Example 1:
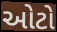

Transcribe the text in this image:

ઓટો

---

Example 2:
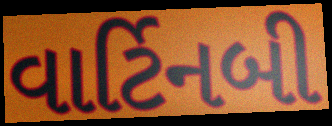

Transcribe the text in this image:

વાર્ટિનબી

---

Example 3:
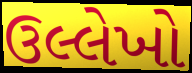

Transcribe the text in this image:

ઉલ્લેખો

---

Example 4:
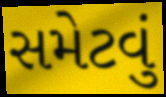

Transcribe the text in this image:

સમેટવું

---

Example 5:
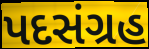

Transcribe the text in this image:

પદસંગ્રહ